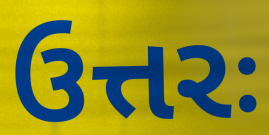
ઉત્તરઃ